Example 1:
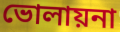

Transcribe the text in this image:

ভোলায়না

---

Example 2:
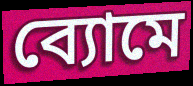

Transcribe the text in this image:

ব্যোমে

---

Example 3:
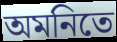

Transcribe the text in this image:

অমনিতে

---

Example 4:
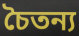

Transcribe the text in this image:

চৈতন্য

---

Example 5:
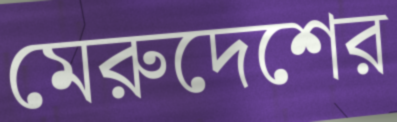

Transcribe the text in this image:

মেরুদেশের